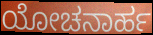
ಯೋಚನಾರ್ಹ